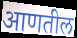
आणतील